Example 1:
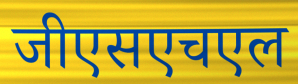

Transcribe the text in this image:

जीएसएचएल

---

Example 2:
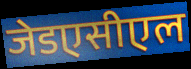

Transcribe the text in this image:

जेडएसीएल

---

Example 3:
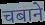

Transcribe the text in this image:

चबाने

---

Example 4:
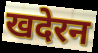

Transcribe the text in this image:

खदेरन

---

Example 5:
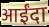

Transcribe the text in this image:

आईंदा